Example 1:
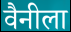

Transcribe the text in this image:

वैनीला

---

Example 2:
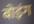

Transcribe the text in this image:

बोइंग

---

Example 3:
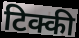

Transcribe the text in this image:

टिक्की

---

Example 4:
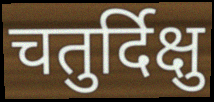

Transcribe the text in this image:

चतुर्दिक्षु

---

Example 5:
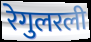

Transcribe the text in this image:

रेगुलरली